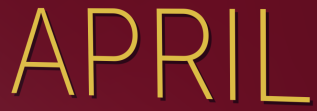
APRIL